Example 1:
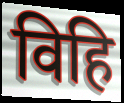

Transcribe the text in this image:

विहि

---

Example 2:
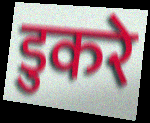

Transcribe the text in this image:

डुकरे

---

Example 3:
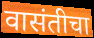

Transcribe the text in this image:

वासंतीचा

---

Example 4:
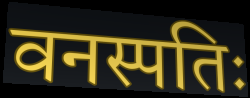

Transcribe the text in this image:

वनस्पतिः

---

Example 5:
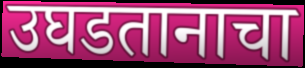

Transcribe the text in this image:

उघडतानाचा